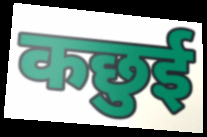
कछुई